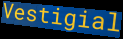
Vestigial